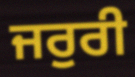
ਜਰੁਰੀ